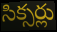
సిక్సర్లు